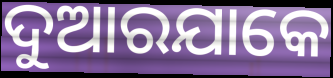
ଦୁଆରଯାକେ